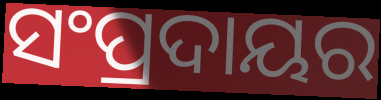
ସଂପ୍ରଦାୟର